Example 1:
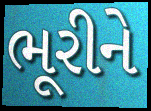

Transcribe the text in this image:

ભૂરીને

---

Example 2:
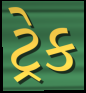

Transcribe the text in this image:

ટ્રેક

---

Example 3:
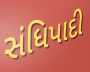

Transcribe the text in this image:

સંધિપાદી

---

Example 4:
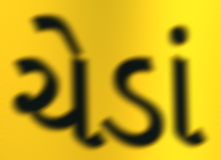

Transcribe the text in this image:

ચેડાં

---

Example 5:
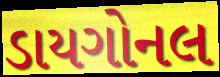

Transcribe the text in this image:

ડાયગોનલ